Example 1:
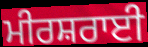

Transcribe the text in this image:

ਮੀਰਸ਼ਰਾਈ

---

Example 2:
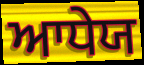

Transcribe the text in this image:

ਆਧੇਯ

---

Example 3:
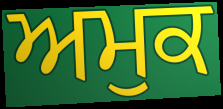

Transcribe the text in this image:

ਅਮੁਕ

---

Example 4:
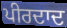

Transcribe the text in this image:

ਪੀਰਦਾਦ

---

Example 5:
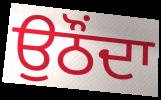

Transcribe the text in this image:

ਉਠੌਂਦਾ